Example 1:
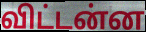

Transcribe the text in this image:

விட்டன்ன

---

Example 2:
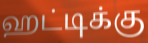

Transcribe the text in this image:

ஹட்டிக்கு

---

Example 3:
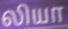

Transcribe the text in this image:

லியா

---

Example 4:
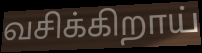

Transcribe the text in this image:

வசிக்கிறாய்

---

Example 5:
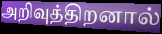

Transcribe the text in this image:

அறிவுத்திறனால்